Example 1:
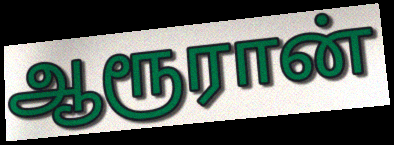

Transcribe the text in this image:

ஆரூரான்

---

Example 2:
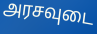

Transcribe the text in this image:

அரசவுடை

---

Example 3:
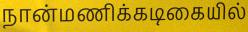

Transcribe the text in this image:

நான்மணிக்கடிகையில்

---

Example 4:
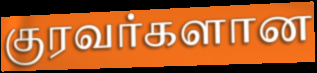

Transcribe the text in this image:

குரவர்களான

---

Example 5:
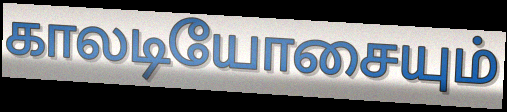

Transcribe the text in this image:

காலடியோசையும்